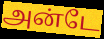
அன்டே